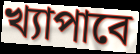
খ্যাপাবে